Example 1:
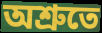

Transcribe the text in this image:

অশ্রুতে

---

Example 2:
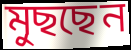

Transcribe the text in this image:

মুছছেন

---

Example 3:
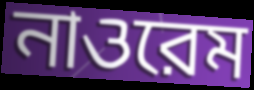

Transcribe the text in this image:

নাওরেম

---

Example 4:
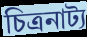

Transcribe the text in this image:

চিত্রনাট্য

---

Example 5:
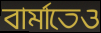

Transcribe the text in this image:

বার্মাতেও